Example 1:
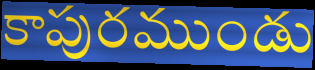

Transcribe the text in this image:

కాపురముండు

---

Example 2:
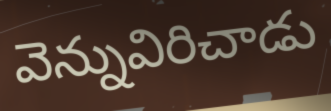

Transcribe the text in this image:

వెన్నువిరిచాడు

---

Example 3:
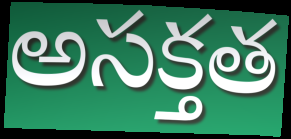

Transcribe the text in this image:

అసక్తత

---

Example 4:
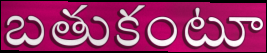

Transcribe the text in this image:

బతుకంటూ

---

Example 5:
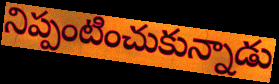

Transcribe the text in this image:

నిప్పంటించుకున్నాడు